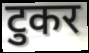
टुकर